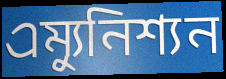
এম্যুনিশ্যন